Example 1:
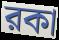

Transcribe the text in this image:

রকা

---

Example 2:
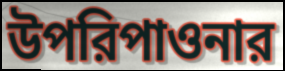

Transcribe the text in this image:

উপরিপাওনার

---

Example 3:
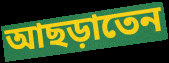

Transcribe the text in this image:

আছড়াতেন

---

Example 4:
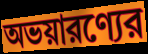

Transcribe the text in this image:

অভয়ারণ্যের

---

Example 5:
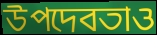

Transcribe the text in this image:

উপদেবতাও